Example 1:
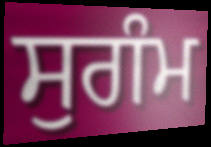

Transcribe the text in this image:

ਸੁਗੰਮ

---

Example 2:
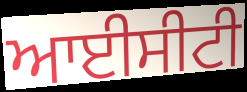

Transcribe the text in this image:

ਆਈਸੀਟੀ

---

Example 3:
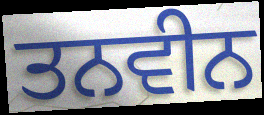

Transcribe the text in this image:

ਤਨਵੀਨ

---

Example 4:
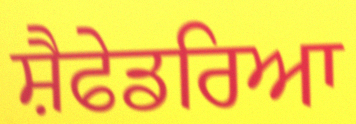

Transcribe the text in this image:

ਸ਼ੈਫੇਡਰਿਆ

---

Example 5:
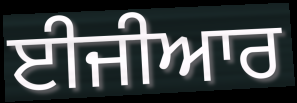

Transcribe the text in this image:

ਈਜੀਆਰ